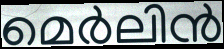
മെർലിൻ